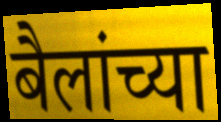
बैलांच्या